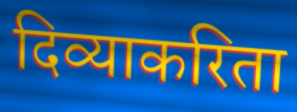
दिव्याकरिता